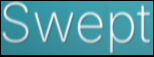
Swept